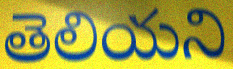
తెలియని